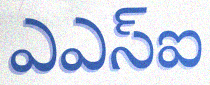
ఎఎస్ఐ